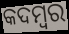
କଦମ୍ବର